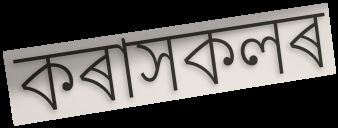
কৰাসকলৰ